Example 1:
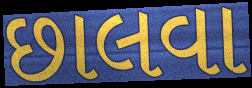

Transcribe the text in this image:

છાલવા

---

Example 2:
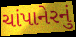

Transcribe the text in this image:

ચાંપાનેરનું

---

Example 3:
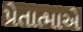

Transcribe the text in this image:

પ્રેતાત્માએ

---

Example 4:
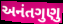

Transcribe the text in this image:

અનંતગુણુ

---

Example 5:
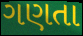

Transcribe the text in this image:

ગણતા